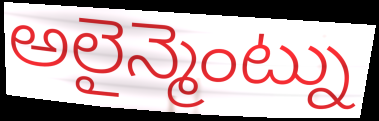
అలైన్మెంట్ను